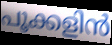
പൂക്കളിൻ